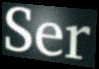
Ser